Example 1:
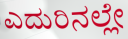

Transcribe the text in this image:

ಎದುರಿನಲ್ಲೇ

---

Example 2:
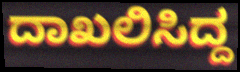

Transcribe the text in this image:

ದಾಖಲಿಸಿದ್ದ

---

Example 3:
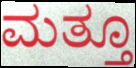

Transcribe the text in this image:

ಮತ್ತೂ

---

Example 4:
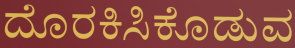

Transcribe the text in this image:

ದೊರಕಿಸಿಕೊಡುವ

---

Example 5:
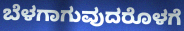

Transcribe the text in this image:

ಬೆಳಗಾಗುವುದರೊಳಗೆ